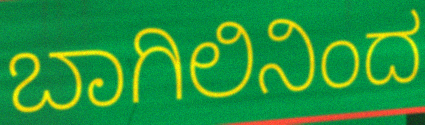
ಬಾಗಿಲಿನಿಂದ